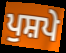
ਪੁਸ਼ਪੇ